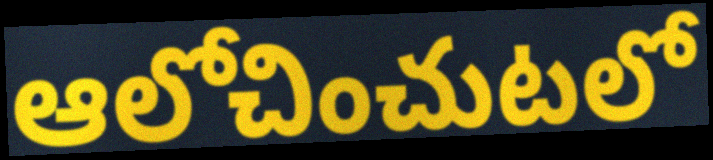
ఆలోచించుటలో